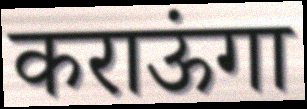
कराऊंगा